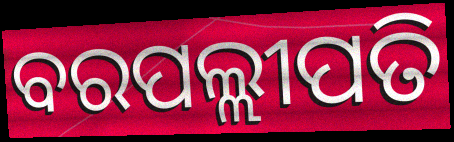
ବରପଲ୍ଲୀପତି